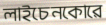
লাইচেনকোৱে